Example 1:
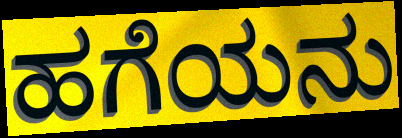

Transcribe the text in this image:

ಹಗೆಯನು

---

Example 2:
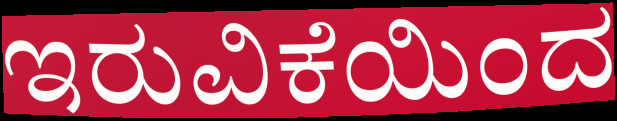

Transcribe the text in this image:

ಇರುವಿಕೆಯಿಂದ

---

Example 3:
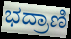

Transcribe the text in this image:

ಭದ್ರಾಣಿ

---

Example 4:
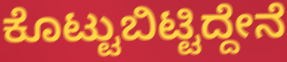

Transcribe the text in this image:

ಕೊಟ್ಟುಬಿಟ್ಟಿದ್ದೇನೆ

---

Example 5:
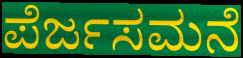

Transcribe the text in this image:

ಪೆರ್ಜಸಮನೆ